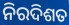
ନିରଦିଶତ